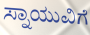
ಸ್ನಾಯುವಿಗೆ